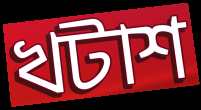
খটাশ